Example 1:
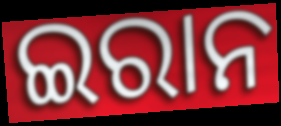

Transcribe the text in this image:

ଇରାନ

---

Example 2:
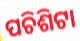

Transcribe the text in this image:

ପଚିଶିଟା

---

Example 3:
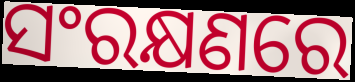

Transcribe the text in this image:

ସଂରକ୍ଷଣରେ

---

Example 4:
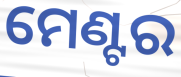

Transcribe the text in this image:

ମେଣ୍ଟର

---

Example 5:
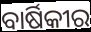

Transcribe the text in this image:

ବାର୍ଷିକୀର